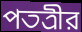
পতত্রীর